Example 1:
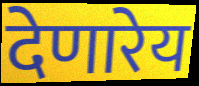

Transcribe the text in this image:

देणारेय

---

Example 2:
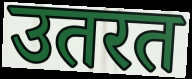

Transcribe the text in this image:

उतरत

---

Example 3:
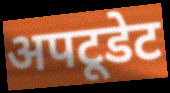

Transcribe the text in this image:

अपटूडेट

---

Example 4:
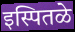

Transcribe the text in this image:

इस्पितळे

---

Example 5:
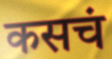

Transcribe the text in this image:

कसचं